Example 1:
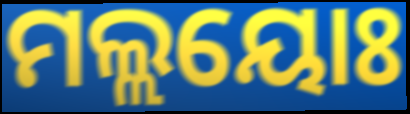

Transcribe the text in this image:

ମଲ୍ଲୟୋଃ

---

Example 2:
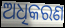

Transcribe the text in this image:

ଅଧିକରଣ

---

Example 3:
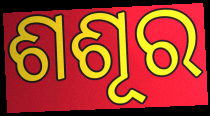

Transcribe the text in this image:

ଶଶୂର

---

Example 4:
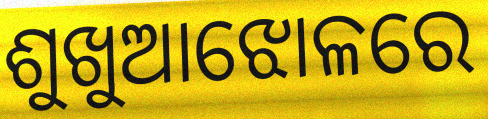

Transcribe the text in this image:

ଶୁଖୁଆଝୋଳରେ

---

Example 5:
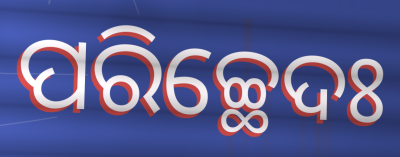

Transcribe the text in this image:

ପରିଚ୍ଛେଦଃ